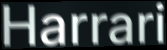
Harrari